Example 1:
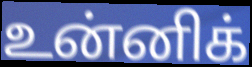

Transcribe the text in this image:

உன்னிக்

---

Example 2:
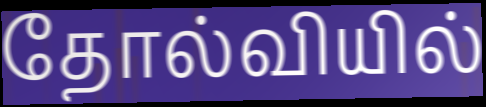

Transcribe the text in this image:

தோல்வியில்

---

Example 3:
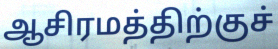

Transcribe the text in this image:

ஆசிரமத்திற்குச்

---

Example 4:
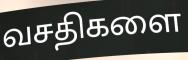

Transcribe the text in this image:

வசதிகளை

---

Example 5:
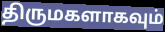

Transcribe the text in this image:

திருமகளாகவும்